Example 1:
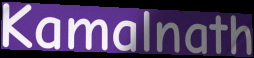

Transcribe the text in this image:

Kamalnath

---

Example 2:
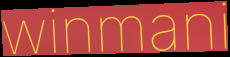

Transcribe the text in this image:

winmani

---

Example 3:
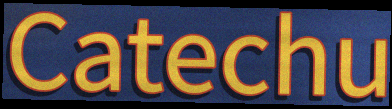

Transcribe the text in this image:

Catechu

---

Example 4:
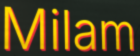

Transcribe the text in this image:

Milam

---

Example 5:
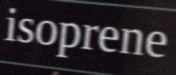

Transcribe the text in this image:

isoprene